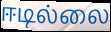
ஈடில்லை